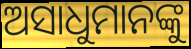
ଅସାଧୁମାନଙ୍କୁ